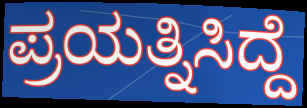
ಪ್ರಯತ್ನಿಸಿದ್ದೆ